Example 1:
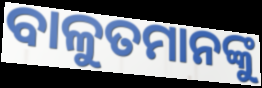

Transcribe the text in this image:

ବାଳୁତମାନଙ୍କୁ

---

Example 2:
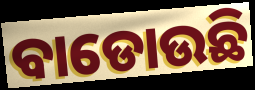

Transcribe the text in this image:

ବାଡୋଉଛି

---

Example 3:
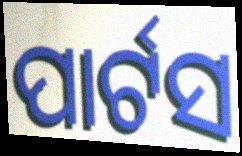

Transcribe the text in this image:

ପାର୍ଟସ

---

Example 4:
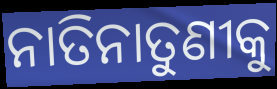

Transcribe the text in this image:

ନାତିନାତୁଣୀକୁ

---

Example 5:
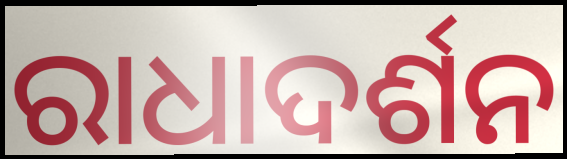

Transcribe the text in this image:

ରାଧାଦର୍ଶନ